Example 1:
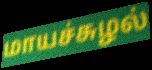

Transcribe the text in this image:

மாயச்சுழல்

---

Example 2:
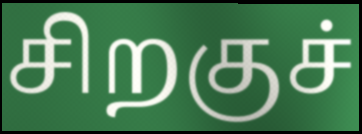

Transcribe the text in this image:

சிறகுச்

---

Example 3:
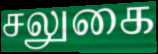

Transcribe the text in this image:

சலுகை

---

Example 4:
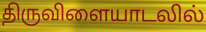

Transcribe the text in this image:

திருவிளையாடலில்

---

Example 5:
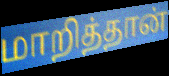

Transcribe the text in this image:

மாறித்தான்